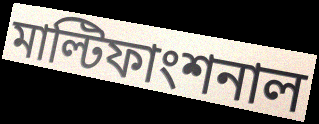
মাল্টিফাংশনাল